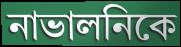
নাভালনিকে